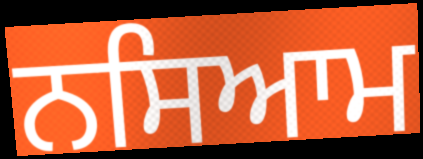
ਨਸਿਆਮ